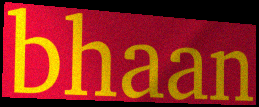
bhaan